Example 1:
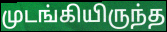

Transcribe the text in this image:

முடங்கியிருந்த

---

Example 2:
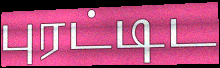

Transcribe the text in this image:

புரட்டிட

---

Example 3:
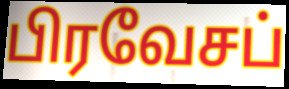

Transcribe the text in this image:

பிரவேசப்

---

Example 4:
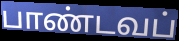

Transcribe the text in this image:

பாண்டவப்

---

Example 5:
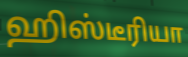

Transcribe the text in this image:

ஹிஸ்டீரியா